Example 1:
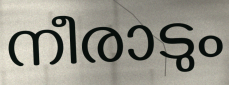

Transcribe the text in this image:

നീരാടും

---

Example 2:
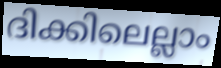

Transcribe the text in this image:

ദിക്കിലെല്ലാം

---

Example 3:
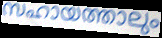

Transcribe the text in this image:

സഹായത്താലും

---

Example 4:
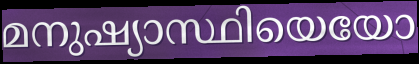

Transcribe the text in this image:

മനുഷ്യാസ്ഥിയെയോ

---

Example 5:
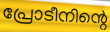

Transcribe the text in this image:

പ്രോടീനിന്റെ